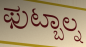
ಫುಟ್ಬಾಲ್ನ